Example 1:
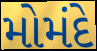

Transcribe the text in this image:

મોમંદે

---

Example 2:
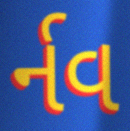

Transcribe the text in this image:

ર્નવ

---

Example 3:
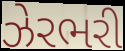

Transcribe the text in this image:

ઝેરભરી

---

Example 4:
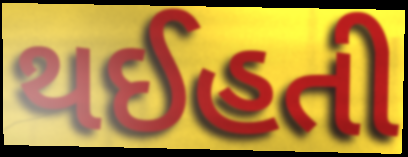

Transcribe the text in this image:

થઈહતી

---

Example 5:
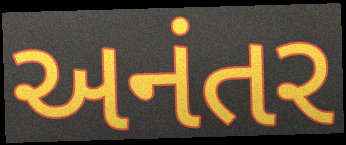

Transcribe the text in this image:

અનંતર